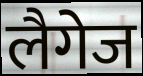
लैगेज